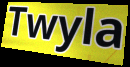
Twyla